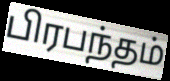
பிரபந்தம்